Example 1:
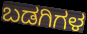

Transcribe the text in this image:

ಬಡಗಿಗಳ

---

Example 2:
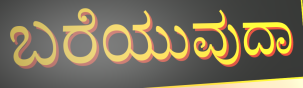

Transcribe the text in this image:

ಬರೆಯುವುದಾ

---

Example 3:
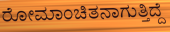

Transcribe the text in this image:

ರೋಮಾಂಚಿತನಾಗುತ್ತಿದ್ದೆ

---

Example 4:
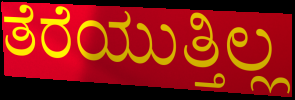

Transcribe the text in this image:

ತೆರೆಯುತ್ತಿಲ್ಲ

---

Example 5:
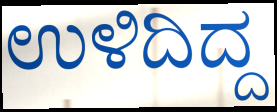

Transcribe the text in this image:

ಉಳಿದಿದ್ದ